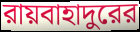
রায়বাহাদুরের